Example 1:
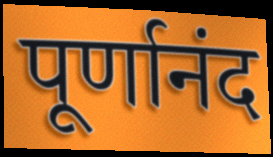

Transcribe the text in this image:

पूर्णानंद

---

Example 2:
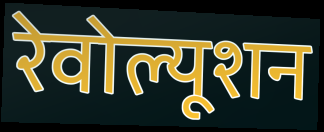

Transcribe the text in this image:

रेवोल्यूशन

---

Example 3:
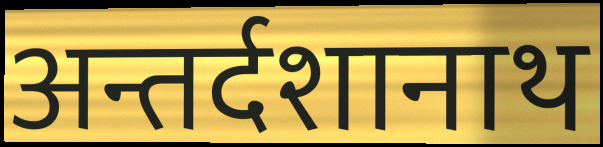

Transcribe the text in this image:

अन्तर्दशानाथ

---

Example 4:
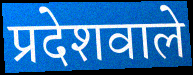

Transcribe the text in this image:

प्रदेशवाले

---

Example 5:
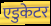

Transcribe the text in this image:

एडुकेटर